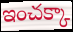
ఇంచక్కా